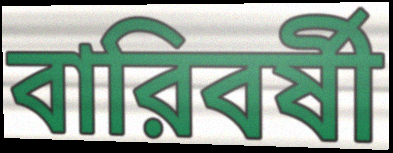
বারিবর্ষী